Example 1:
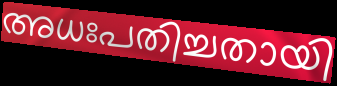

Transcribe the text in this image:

അധഃപതിച്ചതായി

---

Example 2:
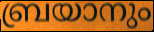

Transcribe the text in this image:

ബ്രയാനും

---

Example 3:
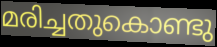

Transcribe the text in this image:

മരിച്ചതുകൊണ്ടു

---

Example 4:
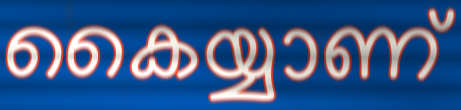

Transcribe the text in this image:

കൈയ്യാണ്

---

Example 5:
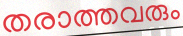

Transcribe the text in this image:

തരാത്തവരും